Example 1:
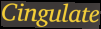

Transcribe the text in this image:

Cingulate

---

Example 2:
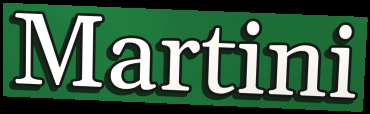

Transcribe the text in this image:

Martini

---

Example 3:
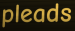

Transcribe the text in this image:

pleads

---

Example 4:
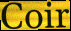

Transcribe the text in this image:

Coir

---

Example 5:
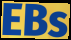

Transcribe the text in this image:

EBs